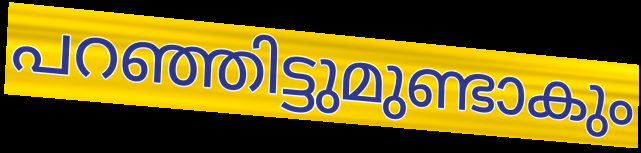
പറഞ്ഞിട്ടുമുണ്ടാകും